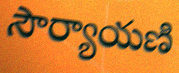
సౌర్యాయణి